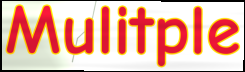
Mulitple